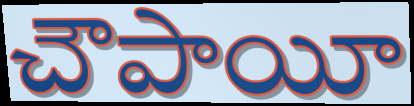
చౌపాయీ